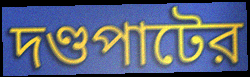
দণ্ডপাটের